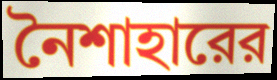
নৈশাহারের